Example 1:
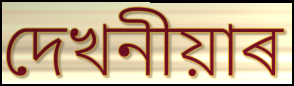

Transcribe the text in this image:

দেখনীয়াৰ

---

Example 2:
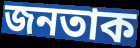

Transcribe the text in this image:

জনতাক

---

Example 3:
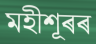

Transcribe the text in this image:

মহীশূৰৰ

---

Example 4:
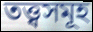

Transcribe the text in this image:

তত্ত্বসমূহ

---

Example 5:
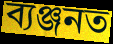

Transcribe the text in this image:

ব্যঞ্জনত